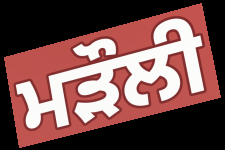
ਮੜੌਲੀ